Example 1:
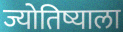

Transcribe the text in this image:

ज्योतिष्याला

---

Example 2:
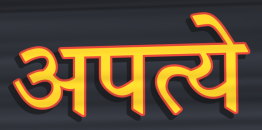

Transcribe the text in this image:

अपत्ये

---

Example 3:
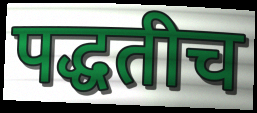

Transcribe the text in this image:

पद्धतीच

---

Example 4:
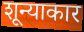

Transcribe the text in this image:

शून्याकार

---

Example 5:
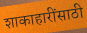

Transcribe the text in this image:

शाकाहारींसाठी